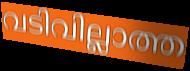
വടിവില്ലാത്ത